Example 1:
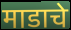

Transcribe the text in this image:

माडाचे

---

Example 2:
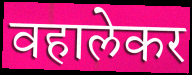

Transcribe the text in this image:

वहालेकर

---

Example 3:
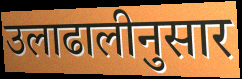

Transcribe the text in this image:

उलाढालीनुसार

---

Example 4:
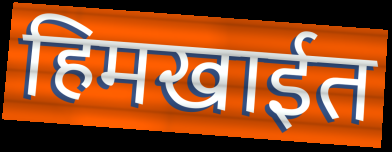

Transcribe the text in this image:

हिमखाईत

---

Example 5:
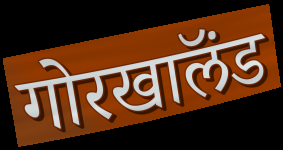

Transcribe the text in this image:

गोरखालॅंड